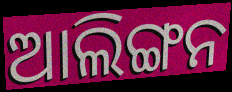
ଆଲିଙ୍ଗନ